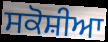
ਸਕੋਸ਼ੀਆ